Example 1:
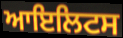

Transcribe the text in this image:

ਆਇਲਿਟਸ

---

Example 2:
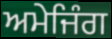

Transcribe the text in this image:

ਅਮੇਜਿੰਗ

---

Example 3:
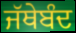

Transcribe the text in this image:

ਜੱਥੇਬੰਦ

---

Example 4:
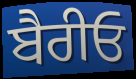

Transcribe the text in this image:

ਬੈਰੀਓ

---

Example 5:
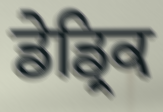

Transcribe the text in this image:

ਡੇਡ੍ਰਿਕ